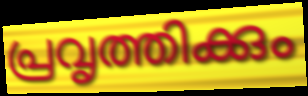
പ്രവൃത്തിക്കും